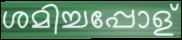
ശമിച്ചപ്പോള്